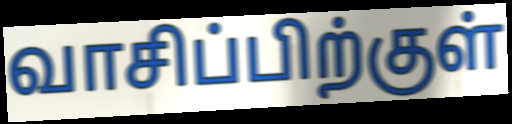
வாசிப்பிற்குள்